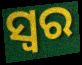
ସ୍ବର